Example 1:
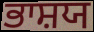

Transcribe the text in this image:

ਭਾਸ਼ਯ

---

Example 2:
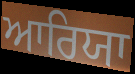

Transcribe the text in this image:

ਆਰਿਯਾ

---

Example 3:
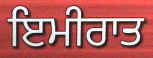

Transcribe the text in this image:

ਇਮੀਰਾਤ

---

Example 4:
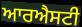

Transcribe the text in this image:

ਆਰਐਸਟੀ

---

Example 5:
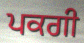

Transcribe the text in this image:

ਪਕਗੀ